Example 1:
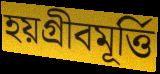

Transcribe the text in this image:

হয়গ্রীবমূর্ত্তি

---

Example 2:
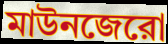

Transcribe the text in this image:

মাউনজেরো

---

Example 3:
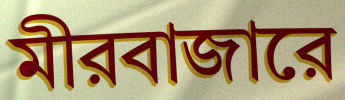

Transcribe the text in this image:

মীরবাজারে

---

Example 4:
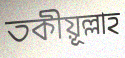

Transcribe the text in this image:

তকীয়ূল্লাহ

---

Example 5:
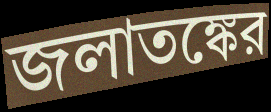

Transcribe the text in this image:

জলাতঙ্কের